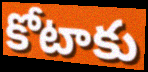
కోటాకు